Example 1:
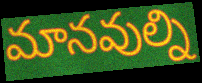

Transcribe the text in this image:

మానవుల్ని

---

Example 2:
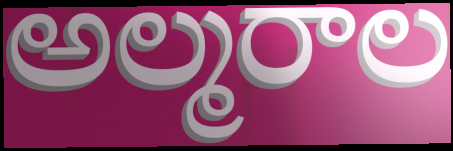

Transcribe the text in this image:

అల్మరాల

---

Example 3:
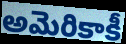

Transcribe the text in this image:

అమెరికాకీ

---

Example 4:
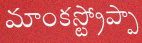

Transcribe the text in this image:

మాంకస్ట్రోప్పా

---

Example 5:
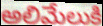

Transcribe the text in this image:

అలిమేలుకి